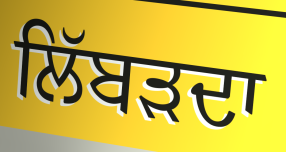
ਲਿੱਬੜਦਾ